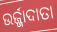
ଉର୍ଜ୍ଜାଦାତା